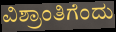
ವಿಶ್ರಾಂತಿಗೆಂದು